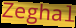
Zeghal